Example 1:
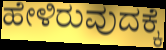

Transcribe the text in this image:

ಹೇಳಿರುವುದಕ್ಕೆ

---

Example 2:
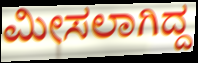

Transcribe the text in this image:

ಮೀಸಲಾಗಿದ್ದ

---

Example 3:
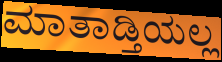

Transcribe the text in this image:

ಮಾತಾಡ್ತಿಯಲ್ಲ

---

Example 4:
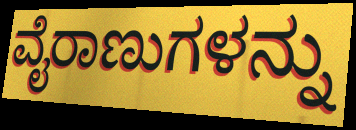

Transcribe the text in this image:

ವೈರಾಣುಗಳನ್ನು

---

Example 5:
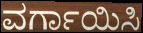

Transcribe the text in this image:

ವರ್ಗಾಯಿಸಿ